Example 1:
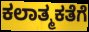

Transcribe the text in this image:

ಕಲಾತ್ಮಕತೆಗೆ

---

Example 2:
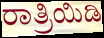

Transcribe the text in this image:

ರಾತ್ರಿಯಿಡಿ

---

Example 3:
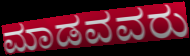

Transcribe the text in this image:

ಮಾಡವವರು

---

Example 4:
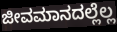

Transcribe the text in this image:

ಜೀವಮಾನದಲ್ಲೆಲ್ಲ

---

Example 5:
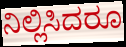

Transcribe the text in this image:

ನಿಲ್ಲಿಸಿದರೂ